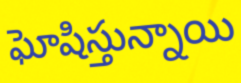
ఘోషిస్తున్నాయి